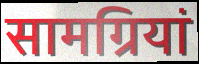
सामग्रियां